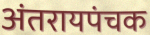
अंतरायपंचक